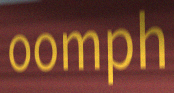
oomph